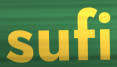
sufi